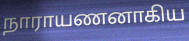
நாராயணனாகிய